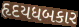
હૃદયધબકાર